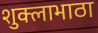
शुक्लाभाठा